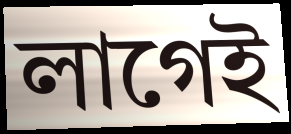
লাগেই